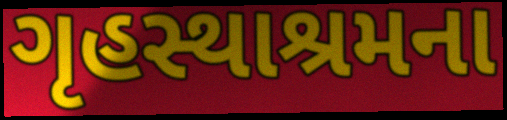
ગૃહસ્થાશ્રમના